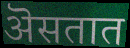
ऄसतात